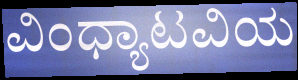
ವಿಂಧ್ಯಾಟವಿಯ